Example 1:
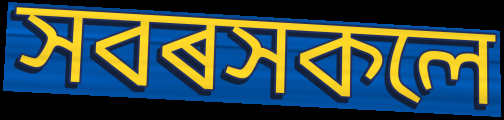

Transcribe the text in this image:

সবৰসকলে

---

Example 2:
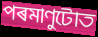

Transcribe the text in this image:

পৰমাণুটোত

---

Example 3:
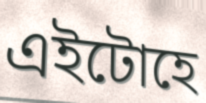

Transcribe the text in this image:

এইটোহে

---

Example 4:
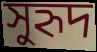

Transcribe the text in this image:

সুহৃদ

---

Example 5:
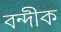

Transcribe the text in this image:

বন্দীক